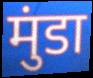
मुंडा